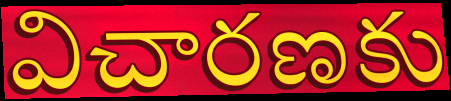
విచారణకు